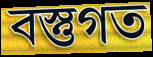
বস্তুগত